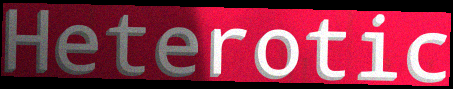
Heterotic